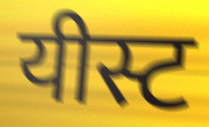
यीस्ट